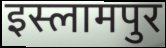
इस्लामपुर